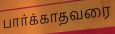
பார்க்காதவரை